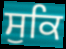
ਸੁਕਿ